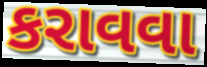
કરાવવા